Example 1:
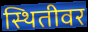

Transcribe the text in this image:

स्थितीवर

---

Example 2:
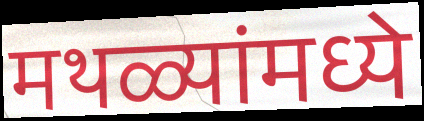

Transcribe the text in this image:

मथळ्यांमध्ये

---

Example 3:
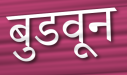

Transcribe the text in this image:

बुडवून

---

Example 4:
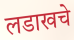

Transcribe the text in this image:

लडाखचे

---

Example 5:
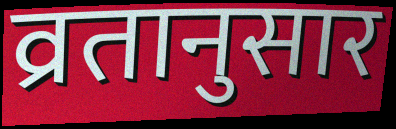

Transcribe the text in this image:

व्रतानुसार